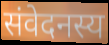
संवेदनस्य